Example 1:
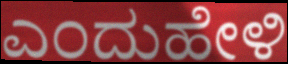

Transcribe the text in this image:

ಎಂದುಹೇಳಿ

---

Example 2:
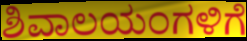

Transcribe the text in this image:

ಶಿವಾಲಯಂಗಳಿಗೆ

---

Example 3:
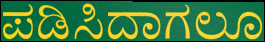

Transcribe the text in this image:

ಪಡಿಸಿದಾಗಲೂ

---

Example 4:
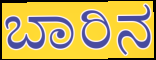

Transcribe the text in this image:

ಬಾರಿನ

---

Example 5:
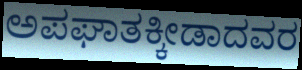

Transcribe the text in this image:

ಅಪಘಾತಕ್ಕೀಡಾದವರ